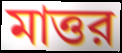
মাত্তর